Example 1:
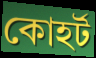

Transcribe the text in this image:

কোহর্ট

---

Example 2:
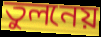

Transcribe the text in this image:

তুলনেয়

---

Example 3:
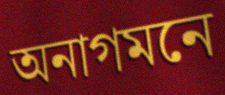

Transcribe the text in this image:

অনাগমনে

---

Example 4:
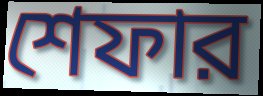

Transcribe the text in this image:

শেফার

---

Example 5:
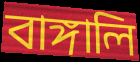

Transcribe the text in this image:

বাঙ্গালি